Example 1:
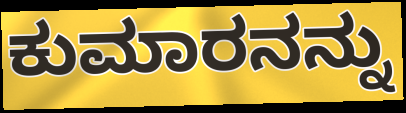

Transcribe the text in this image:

ಕುಮಾರನನ್ನು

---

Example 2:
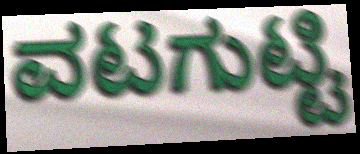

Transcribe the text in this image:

ವಟಗುಟ್ಟಿ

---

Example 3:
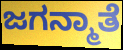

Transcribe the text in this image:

ಜಗನ್ಮಾತೆ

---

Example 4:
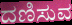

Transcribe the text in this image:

ದಣಿಸುವ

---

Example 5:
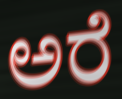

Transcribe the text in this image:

ಅರೆ